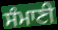
ਸੰਮਾਣੀ